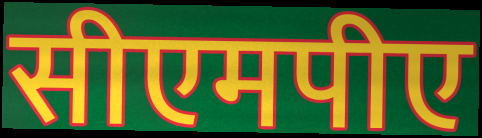
सीएमपीए